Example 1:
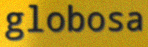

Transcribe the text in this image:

globosa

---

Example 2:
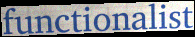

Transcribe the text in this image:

functionalist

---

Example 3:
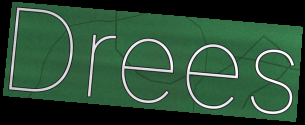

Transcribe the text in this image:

Drees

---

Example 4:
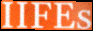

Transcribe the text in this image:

IIFEs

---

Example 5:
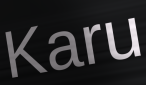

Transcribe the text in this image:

Karu